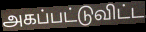
அகப்பட்டுவிட்ட